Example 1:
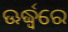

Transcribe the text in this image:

ଊର୍ଦ୍ଧ୍ୱରେ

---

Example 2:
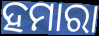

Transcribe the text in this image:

ହମାରା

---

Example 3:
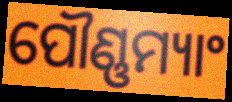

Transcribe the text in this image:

ପୌଣ୍ଣମ୍ୟାଂ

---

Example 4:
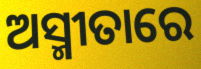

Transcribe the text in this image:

ଅସ୍ମୀତାରେ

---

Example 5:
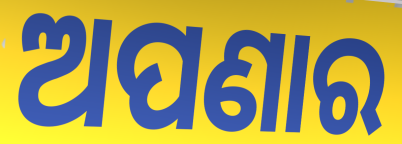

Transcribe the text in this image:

ଅପଣାର